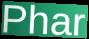
Phar